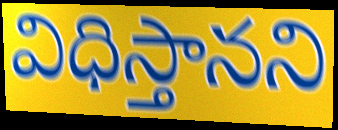
విధిస్తానని